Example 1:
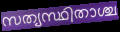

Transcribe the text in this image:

സത്യസ്ഥിതാശ്ച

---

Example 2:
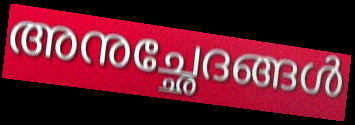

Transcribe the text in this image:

അനുച്ഛേദങ്ങൾ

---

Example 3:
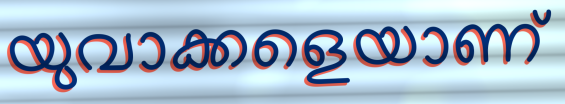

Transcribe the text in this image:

യുവാക്കളെയാണ്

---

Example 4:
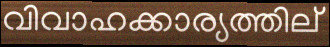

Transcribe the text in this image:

വിവാഹക്കാര്യത്തില്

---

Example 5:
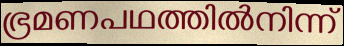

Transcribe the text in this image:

ഭ്രമണപഥത്തിൽനിന്ന്